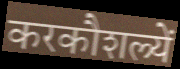
करकौशल्यें